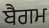
ਬੈਗਮ